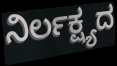
ನಿರ್ಲಕ್ಷ್ಯದ